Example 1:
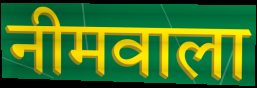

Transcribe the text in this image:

नीमवाला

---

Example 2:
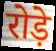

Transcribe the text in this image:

रोड़े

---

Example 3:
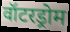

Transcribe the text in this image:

वॉटरड्रोम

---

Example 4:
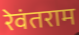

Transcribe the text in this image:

रेवंतराम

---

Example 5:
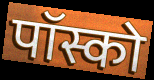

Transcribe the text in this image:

पॉस्को